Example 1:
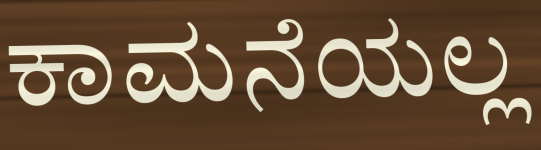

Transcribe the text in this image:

ಕಾಮನೆಯಲ್ಲ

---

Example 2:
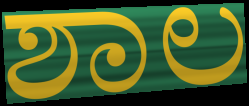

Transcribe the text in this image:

ಶಾಲ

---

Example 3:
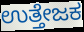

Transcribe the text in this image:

ಉತ್ತೇಜಕ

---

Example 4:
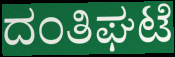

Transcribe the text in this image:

ದಂತಿಘಟೆ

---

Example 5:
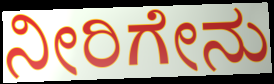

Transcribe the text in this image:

ನೀರಿಗೇನು